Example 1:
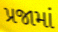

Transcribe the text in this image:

પ્રજામાં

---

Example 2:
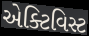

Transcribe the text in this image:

એક્ટિવિસ્ટ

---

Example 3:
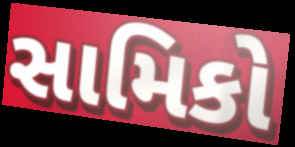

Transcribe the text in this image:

સામિકો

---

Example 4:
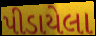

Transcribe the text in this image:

પીડાયેલા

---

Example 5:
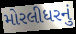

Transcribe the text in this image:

મોરલીધરનું